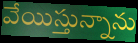
వేయిస్తున్నాను